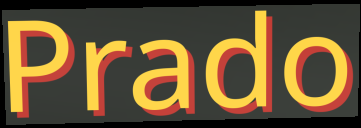
Prado